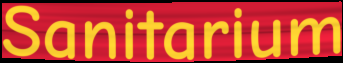
Sanitarium